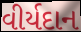
વીર્યદાન